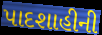
પાદશાહીની